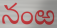
నంఱ